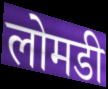
लोमडी